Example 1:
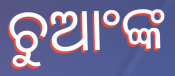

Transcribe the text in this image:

ଚୁଆଂଙ୍କ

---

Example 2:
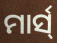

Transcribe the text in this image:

ମାର୍ସ୍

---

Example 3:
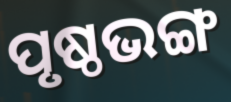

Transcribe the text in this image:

ପୃଷ୍ଠଭଙ୍ଗ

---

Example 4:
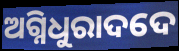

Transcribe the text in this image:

ଅଗ୍ନିଧୁରାଦଦେ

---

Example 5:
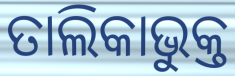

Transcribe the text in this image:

ତାଲିକାଭୁକ୍ତ